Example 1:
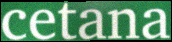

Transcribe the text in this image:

cetana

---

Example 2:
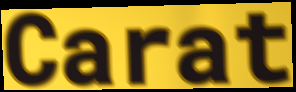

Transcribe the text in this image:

Carat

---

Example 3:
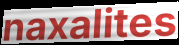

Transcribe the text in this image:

naxalites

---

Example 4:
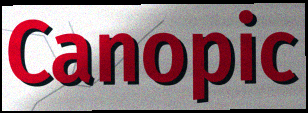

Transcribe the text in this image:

Canopic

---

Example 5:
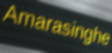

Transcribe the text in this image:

Amarasinghe